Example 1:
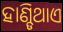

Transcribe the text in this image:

ହାଣ୍ଡିଥାଏ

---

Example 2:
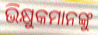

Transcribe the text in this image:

ଭିକ୍ଷୁକମାନଙ୍କୁ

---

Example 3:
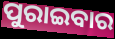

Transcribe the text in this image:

ପୁରାଇବାର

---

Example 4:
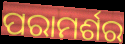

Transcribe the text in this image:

ପରାମର୍ଶର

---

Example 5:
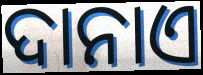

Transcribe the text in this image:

ଦାନାଏ